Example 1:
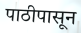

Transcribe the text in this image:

पाठीपासून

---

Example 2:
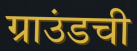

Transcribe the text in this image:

ग्राउंडची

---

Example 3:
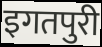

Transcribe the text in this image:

इगतपुरी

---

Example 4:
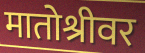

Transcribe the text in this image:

मातोश्रीवर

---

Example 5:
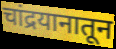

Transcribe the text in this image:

चांद्रयानातून